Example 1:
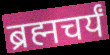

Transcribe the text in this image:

ब्रह्मचर्यं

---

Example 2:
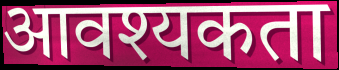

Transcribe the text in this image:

आवश्‍यकता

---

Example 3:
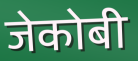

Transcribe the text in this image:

जेकोबी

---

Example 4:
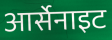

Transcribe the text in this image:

आर्सेनाइट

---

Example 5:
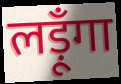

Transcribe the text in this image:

लड़ूँगा